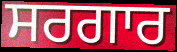
ਸਰਗਾਰ